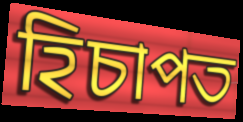
হিচাপত